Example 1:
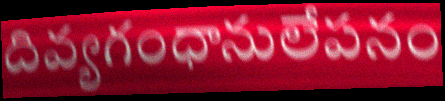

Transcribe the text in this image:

దివ్యగంధానులేపనం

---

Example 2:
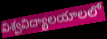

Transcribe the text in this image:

విశ్వవిద్యాలయాలలో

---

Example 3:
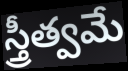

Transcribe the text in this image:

స్త్రీత్వమే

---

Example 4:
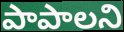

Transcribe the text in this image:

పాపాలని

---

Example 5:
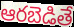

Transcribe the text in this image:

ఆరబెడితే